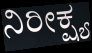
ನಿರೀಕ್ಷ್ಯ